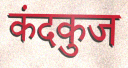
कंदकुज